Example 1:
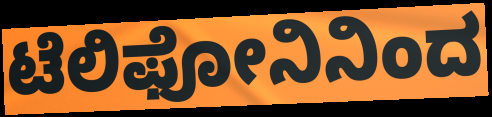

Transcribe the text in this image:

ಟೆಲಿಫೋನಿನಿಂದ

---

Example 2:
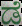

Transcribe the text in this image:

ಡೆ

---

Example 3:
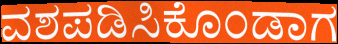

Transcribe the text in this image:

ವಶಪಡಿಸಿಕೊಂಡಾಗ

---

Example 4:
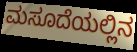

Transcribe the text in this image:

ಮಸೂದೆಯಲ್ಲಿನ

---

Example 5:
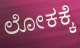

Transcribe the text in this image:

ಲೋಕಕ್ಕೆ